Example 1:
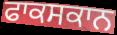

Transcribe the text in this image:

ਫਾਕਸਕਾਨ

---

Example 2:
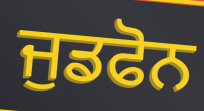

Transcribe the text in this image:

ਜੁਡਫੋਨ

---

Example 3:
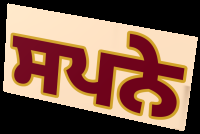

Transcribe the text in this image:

ਸਪਨੇ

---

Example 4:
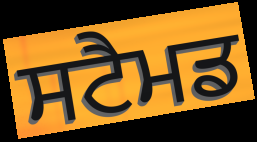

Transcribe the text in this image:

ਸਟੈਮਡ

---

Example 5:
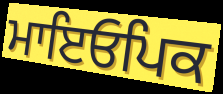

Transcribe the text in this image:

ਮਾਇਓਪਿਕ